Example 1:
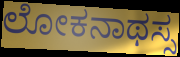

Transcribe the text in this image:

ಲೋಕನಾಥಸ್ಸ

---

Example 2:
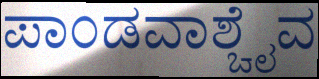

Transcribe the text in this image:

ಪಾಂಡವಾಶ್ಚೈವ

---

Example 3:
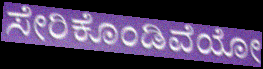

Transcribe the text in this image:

ಸೇರಿಕೊಂಡಿವೆಯೋ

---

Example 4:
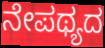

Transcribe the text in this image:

ನೇಪಥ್ಯದ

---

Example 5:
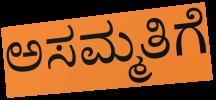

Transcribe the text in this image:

ಅಸಮ್ಮತಿಗೆ